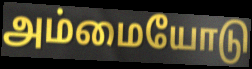
அம்மையோடு